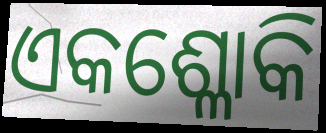
ଏକଶ୍ଳୋକି